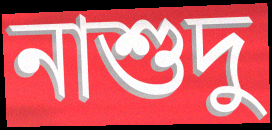
নাশুদু